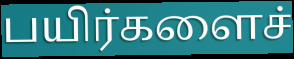
பயிர்களைச்